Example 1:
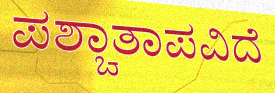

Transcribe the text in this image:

ಪಶ್ಚಾತಾಪವಿದೆ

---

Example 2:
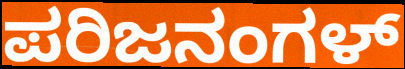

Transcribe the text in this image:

ಪರಿಜನಂಗಳ್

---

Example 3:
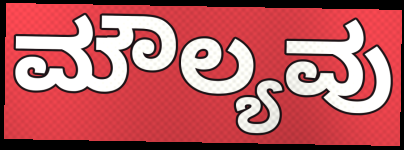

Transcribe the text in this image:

ಮೌಲ್ಯವು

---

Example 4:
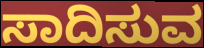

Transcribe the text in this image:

ಸಾದಿಸುವ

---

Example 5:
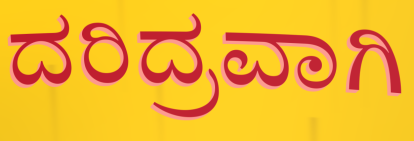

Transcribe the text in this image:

ದರಿದ್ರವಾಗಿ